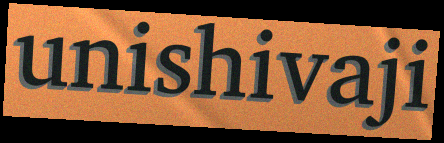
unishivaji